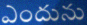
ఎందును